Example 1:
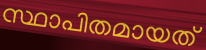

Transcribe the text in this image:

സ്ഥാപിതമായത്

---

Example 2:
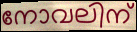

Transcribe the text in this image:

നോവലിന്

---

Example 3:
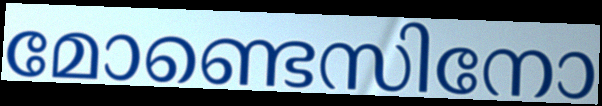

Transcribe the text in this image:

മോണ്ടെസിനോ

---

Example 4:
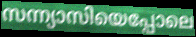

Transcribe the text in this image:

സന്ന്യാസിയെപ്പോലെ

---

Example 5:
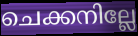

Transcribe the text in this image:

ചെക്കനില്ലേ